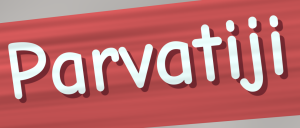
Parvatiji